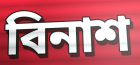
বিনাশ